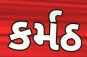
કર્મઠ